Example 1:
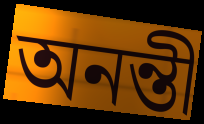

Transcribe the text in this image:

অনন্তী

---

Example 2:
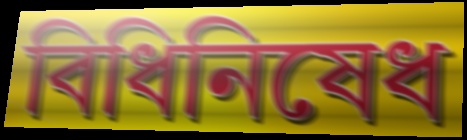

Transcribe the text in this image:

বিধিনিষেধ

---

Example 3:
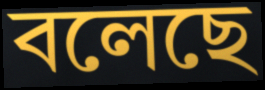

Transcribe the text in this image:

বলেছে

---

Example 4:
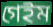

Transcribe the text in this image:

গেইম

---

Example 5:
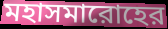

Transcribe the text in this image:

মহাসমারোহের